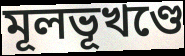
মূলভূখণ্ডে